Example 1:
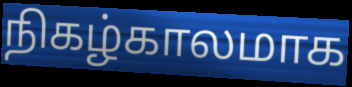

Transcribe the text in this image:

நிகழ்காலமாக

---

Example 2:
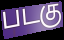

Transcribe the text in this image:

படகு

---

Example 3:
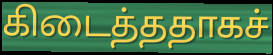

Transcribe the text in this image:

கிடைத்ததாகச்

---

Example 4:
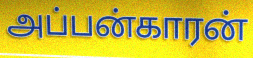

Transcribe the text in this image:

அப்பன்காரன்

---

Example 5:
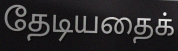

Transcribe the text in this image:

தேடியதைக்